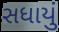
સધાયું